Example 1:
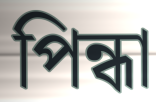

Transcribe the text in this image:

পিন্ধা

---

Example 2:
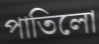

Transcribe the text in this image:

পাতিলো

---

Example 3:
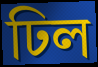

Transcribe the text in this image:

ঢিল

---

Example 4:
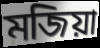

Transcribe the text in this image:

মজিয়া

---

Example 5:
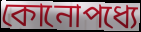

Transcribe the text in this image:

কোনোপধ্যে